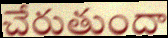
చేరుతుందా